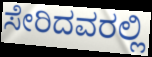
ಸೇರಿದವರಲ್ಲಿ